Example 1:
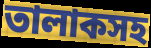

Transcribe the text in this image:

তালাকসহ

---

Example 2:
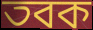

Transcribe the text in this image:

তবক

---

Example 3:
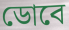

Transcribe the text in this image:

ডোবে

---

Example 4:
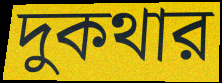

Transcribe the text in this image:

দুকথার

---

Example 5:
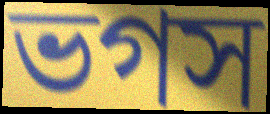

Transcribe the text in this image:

ভগস